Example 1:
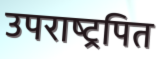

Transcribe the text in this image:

उपराष्ट्रपित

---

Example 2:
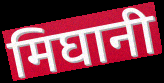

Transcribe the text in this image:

मिघानी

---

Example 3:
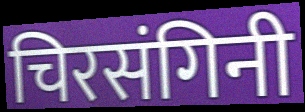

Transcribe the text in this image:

चिरसंगिनी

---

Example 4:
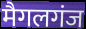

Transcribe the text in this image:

मैगलगंज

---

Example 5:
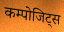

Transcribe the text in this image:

कम्पोजिट्स